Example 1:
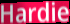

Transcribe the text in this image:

Hardie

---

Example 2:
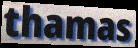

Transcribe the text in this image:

thamas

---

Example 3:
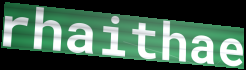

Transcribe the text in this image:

rhaithae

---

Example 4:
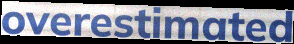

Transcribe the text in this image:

overestimated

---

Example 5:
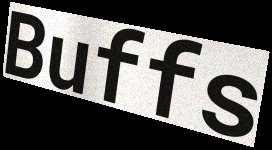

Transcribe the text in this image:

Buffs